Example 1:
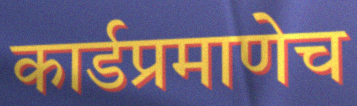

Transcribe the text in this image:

कार्डप्रमाणेच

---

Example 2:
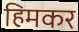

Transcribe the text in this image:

हिमकर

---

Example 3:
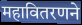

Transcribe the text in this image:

महावितरणने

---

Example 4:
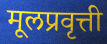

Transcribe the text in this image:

मूलप्रवृत्ती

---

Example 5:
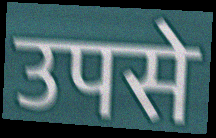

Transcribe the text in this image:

उपसे